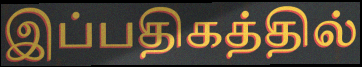
இப்பதிகத்தில்